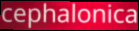
cephalonica